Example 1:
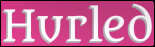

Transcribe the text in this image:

Hurled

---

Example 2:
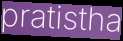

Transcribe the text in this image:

pratistha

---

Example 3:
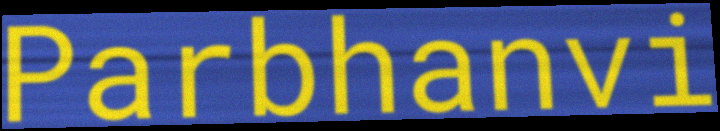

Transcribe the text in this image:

Parbhanvi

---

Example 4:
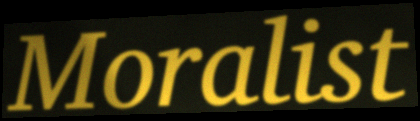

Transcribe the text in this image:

Moralist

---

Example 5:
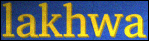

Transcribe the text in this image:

lakhwa